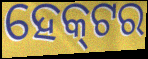
ହେକ୍‌ଟର